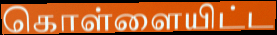
கொள்ளையிட்ட